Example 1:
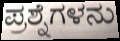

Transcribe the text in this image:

ಪ್ರಶ್ನೆಗಳನು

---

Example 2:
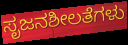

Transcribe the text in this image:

ಸೃಜನಶೀಲತೆಗಳು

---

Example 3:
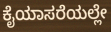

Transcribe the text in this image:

ಕೈಯಾಸರೆಯಲ್ಲೇ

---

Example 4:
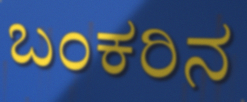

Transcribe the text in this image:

ಬಂಕರಿನ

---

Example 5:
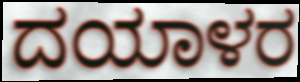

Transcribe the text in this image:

ದಯಾಳರ